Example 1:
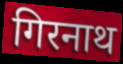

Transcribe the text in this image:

गिरनाथ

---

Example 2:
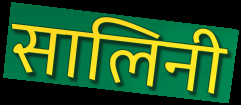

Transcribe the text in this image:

सालिनी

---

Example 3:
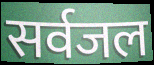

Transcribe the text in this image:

सर्वजल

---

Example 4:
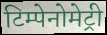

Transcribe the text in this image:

टिम्पेनोमेट्री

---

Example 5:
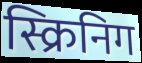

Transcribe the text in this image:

स्क्रिनिग